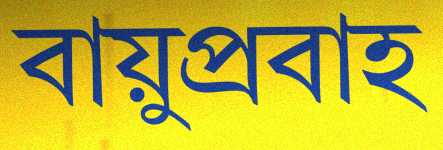
বায়ুপ্রবাহ